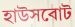
হাউসবোট